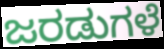
ಜರಡುಗಳೆ